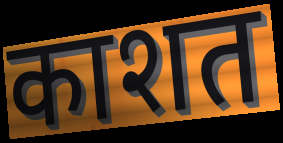
काशत